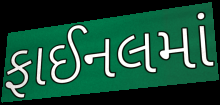
ફાઈનલમાં